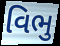
વિભુ